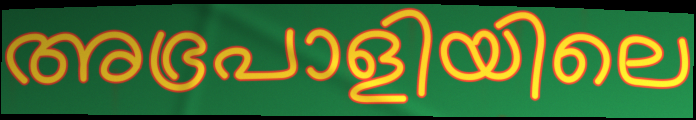
അഭ്രപാളിയിലെ